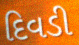
દિવડી